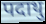
पदाथु